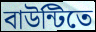
বাউন্টিতে